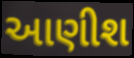
આણીશ